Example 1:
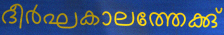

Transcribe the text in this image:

ദീർഘകാലത്തേക്കു്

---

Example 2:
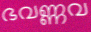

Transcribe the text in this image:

ഭവണ്ണവ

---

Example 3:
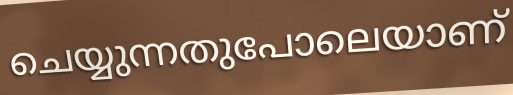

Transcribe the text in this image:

ചെയ്യുന്നതുപോലെയാണ്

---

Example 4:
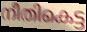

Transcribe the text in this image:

നീതികെട്ട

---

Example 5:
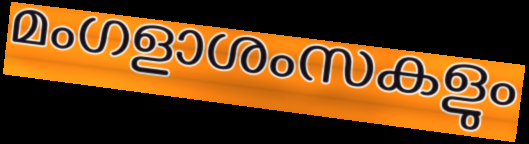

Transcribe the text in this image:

മംഗളാശംസകളും